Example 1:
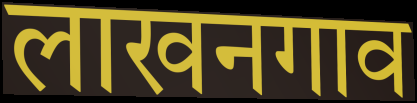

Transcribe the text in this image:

लाखनगाव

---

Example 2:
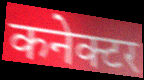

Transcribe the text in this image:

कनेक्टर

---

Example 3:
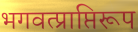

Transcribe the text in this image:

भगवत्प्राप्तिरूप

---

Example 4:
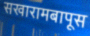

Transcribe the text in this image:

सखारामबापूस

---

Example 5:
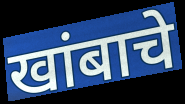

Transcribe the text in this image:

खांबाचे